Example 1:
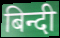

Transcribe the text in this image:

बिन्दी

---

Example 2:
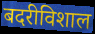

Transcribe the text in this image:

बदरीविशाल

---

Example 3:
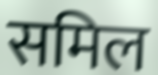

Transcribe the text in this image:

समिल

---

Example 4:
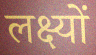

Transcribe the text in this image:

लक्ष्यों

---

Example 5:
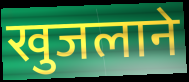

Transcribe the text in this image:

खुजलाने